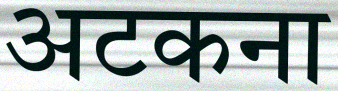
अटकना